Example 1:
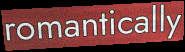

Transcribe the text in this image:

romantically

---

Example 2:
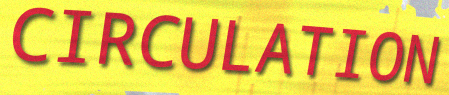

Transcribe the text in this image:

CIRCULATION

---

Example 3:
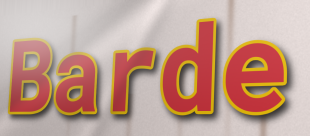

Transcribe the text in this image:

Barde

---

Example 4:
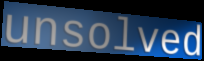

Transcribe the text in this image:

unsolved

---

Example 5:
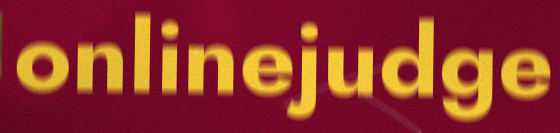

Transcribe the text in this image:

onlinejudge